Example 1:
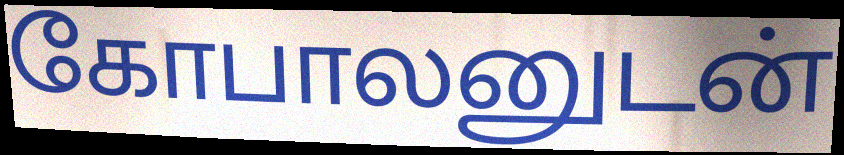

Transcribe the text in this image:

கோபாலனுடன்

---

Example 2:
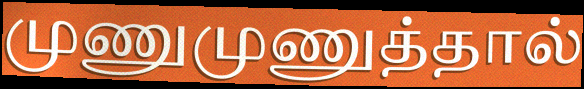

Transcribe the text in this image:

முணுமுணுத்தால்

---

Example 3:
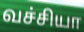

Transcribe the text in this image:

வச்சியா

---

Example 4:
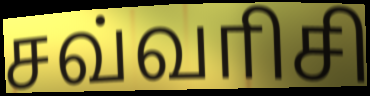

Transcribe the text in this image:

சவ்வரிசி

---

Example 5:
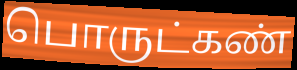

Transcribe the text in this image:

பொருட்கண்